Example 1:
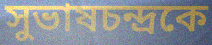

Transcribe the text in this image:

সুভাষচন্দ্রকে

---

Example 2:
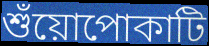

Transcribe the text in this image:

শুঁয়োপোকাটি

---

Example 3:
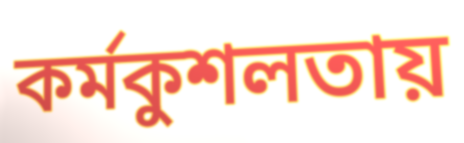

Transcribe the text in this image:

কর্মকুশলতায়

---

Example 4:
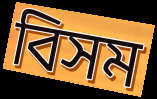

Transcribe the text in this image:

বিসম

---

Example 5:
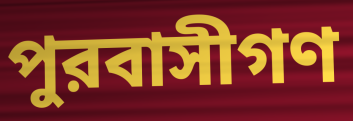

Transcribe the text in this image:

পুরবাসীগণ